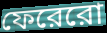
ফেরেরো